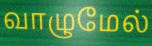
வாழுமேல்